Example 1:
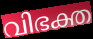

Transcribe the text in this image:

വിഭക്ത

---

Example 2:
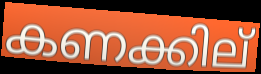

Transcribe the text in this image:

കണക്കില്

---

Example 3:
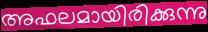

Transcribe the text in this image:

അഫലമായിരിക്കുന്നു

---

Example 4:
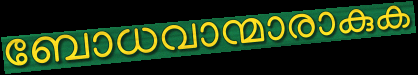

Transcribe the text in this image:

ബോധവാന്മാരാകുക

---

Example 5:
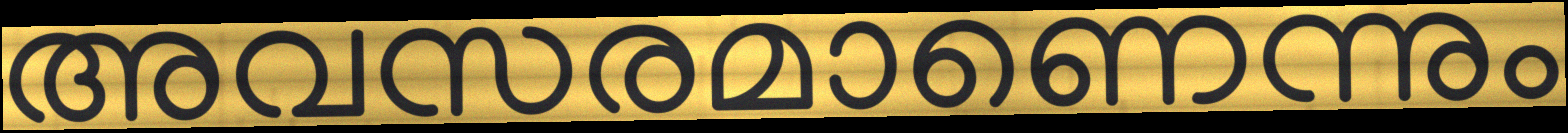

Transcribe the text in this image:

അവസരമാണെന്നും